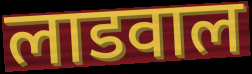
लाडवाल